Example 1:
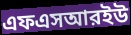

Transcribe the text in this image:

এফএসআরইউ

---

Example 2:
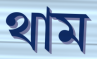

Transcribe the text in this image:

থাম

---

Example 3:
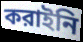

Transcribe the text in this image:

করাইনি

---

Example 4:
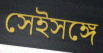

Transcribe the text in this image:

সেইসঙ্গে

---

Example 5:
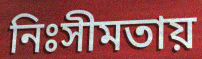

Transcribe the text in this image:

নিঃসীমতায়